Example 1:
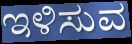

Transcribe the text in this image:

ಇಳಿಸುವ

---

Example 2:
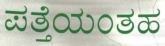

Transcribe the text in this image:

ಪತ್ತೆಯಂತಹ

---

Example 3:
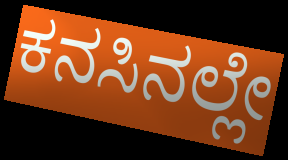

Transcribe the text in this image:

ಕನಸಿನಲ್ಲೇ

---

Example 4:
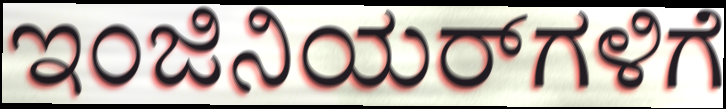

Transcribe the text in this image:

ಇಂಜಿನಿಯರ್‌ಗಳಿಗೆ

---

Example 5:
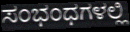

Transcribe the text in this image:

ಸಂಭಂಧಗಳಲ್ಲಿ